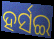
ହର୍ସଇ